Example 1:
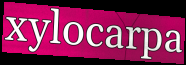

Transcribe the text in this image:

xylocarpa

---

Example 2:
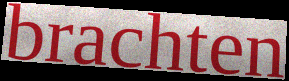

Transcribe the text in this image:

brachten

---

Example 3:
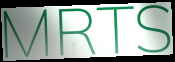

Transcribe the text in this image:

MRTS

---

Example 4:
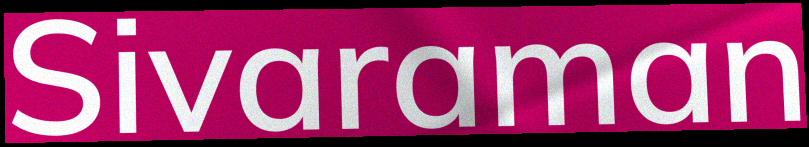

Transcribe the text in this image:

Sivaraman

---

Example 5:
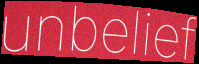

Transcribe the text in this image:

unbelief